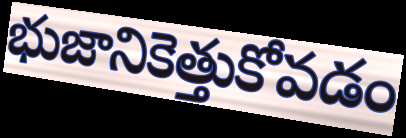
భుజానికెత్తుకోవడం